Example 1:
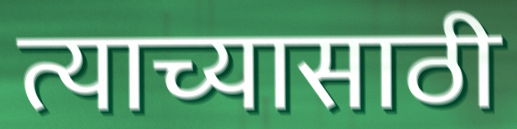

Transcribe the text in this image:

त्याच्यासाठी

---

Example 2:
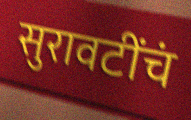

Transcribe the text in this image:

सुरावटींचं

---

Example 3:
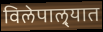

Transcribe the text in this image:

विलेपाल्र्यात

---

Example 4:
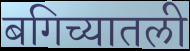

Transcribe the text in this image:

बगिच्यातली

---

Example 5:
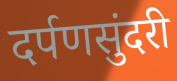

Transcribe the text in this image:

दर्पणसुंदरी